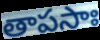
తాపసాః